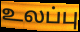
உலப்பு